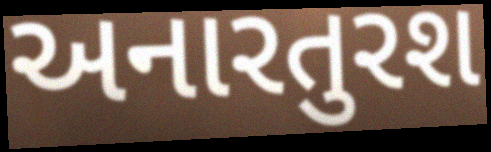
અનારતુરશ